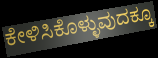
ಕೇಳಿಸಿಕೊಳ್ಳುವುದಕ್ಕೂ